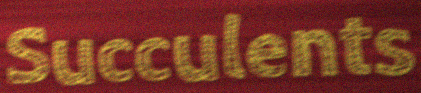
Succulents